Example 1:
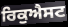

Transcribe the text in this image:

ਰਿਕੁਐਸਟ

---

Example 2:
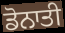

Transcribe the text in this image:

ਡੋਨਾਤੀ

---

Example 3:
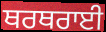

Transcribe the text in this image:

ਥਰਥਰਾਈ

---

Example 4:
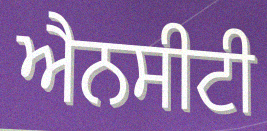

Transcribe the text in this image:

ਐਨਸੀਟੀ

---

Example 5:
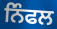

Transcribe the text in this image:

ਨਿੰਫਲ